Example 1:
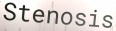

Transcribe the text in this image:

Stenosis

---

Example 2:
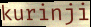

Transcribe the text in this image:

kurinji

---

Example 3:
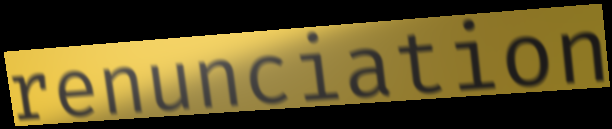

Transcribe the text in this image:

renunciation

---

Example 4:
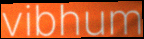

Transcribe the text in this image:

vibhum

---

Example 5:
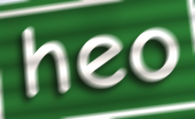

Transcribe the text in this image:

heo